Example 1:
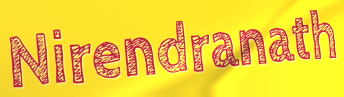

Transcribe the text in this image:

Nirendranath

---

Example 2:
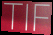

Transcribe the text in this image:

TIF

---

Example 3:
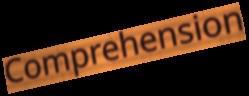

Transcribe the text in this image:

Comprehension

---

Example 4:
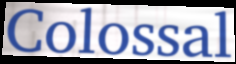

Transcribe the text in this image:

Colossal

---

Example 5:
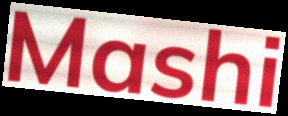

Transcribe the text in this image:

Mashi